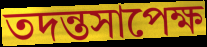
তদন্তসাপেক্ষ